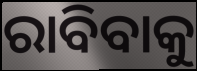
ରାବିବାକୁ